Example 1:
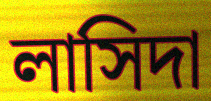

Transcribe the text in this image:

লাসিদা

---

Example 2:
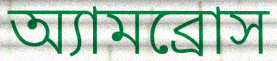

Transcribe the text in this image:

অ্যামব্রোস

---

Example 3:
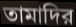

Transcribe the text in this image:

তামাদির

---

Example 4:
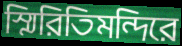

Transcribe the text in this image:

স্মিরিতিমন্দিরে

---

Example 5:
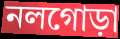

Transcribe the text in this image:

নলগোড়া